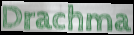
Drachma